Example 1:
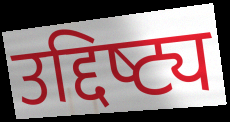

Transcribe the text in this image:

उद्दिष्ट्य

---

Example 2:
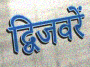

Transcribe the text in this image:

द्विजवरें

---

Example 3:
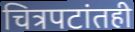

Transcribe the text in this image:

चित्रपटांतही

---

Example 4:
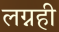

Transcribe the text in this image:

लग्नही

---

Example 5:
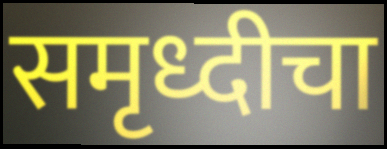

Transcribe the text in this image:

समृध्दीचा